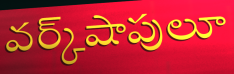
వర్క్‌షాపులూ